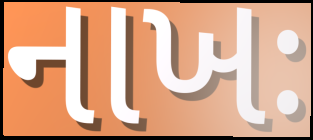
નાખઃ